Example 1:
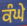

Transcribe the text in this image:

ਕੰਘੇ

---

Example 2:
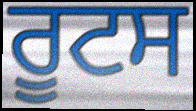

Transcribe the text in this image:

ਰੂਟਸ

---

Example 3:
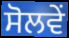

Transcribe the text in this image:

ਸੋਲਵੇਂ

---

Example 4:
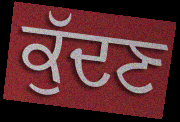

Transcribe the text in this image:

ਕੁੱਦਣ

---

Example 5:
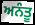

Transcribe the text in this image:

ਅਨੰਤੂ